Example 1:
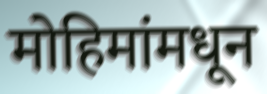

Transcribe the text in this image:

मोहिमांमधून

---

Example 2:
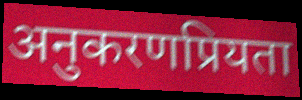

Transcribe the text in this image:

अनुकरणप्रियता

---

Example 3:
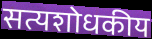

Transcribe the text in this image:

सत्यशोधकीय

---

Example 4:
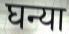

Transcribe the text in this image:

घन्या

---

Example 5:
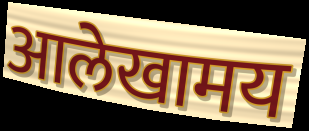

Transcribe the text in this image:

आलेखामय